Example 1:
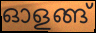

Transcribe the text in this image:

ഓളങ്ങ്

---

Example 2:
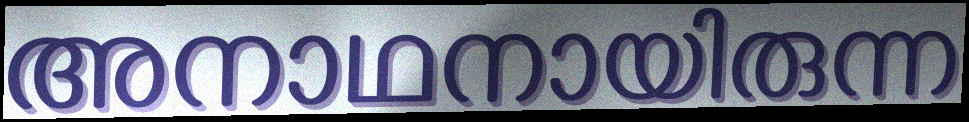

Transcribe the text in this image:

അനാഥനായിരുന്ന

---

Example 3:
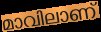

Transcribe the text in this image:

മാവിലാണ്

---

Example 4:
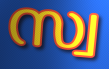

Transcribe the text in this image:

സ്വ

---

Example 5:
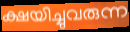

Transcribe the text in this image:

ക്ഷയിച്ചുവരുന്ന